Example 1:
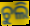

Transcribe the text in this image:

ଚୁଲି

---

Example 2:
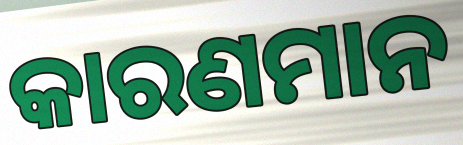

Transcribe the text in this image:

କାରଣମାନ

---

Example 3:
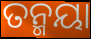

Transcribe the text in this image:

ତନ୍ମୟା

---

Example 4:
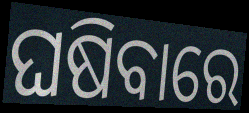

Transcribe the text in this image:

ଘଷିବାରେ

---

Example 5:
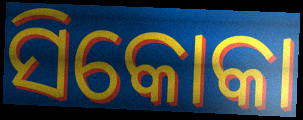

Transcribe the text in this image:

ସିକୋକା